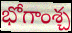
భోగాంశ్చ